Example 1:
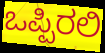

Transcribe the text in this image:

ಒಪ್ಪಿರಲಿ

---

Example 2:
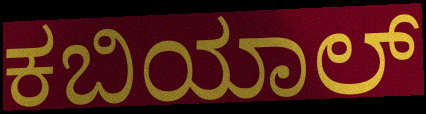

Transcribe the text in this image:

ಕಬಿಯಾಲ್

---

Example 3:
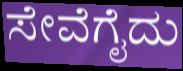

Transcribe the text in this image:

ಸೇವೆಗೈದು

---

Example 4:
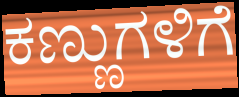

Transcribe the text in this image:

ಕಣ್ಣುಗಳಿಗೆ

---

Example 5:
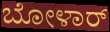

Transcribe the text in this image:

ಬೋಳಾರ್